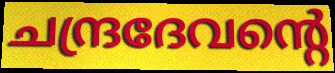
ചന്ദ്രദേവന്റെ